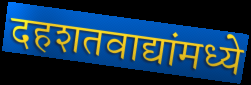
दहशतवाद्यांमध्ये